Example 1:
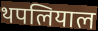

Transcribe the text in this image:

थपलियाल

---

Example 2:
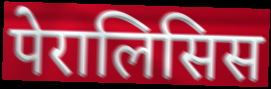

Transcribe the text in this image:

पेरालिसिस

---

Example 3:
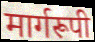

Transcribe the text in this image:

मार्गरूपी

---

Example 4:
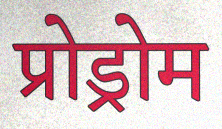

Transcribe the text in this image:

प्रोड्रोम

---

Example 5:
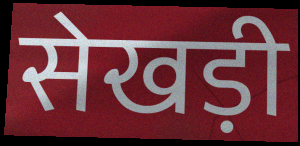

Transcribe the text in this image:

सेखड़ी